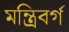
মন্ত্রিবর্গ